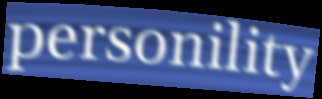
personility